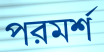
পরমর্শ